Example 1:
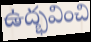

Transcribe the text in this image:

ఉద్భవించి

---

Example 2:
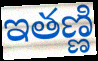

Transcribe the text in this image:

ఇతణ్ణి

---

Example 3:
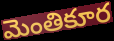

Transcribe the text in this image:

మెంతికూర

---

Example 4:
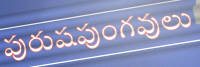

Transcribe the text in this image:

పురుషపుంగవులు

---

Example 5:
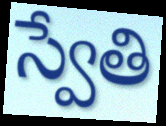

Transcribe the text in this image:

స్వేతి